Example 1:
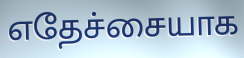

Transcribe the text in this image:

எதேச்சையாக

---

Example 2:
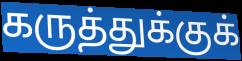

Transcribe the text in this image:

கருத்துக்குக்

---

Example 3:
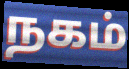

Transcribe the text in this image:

நகம்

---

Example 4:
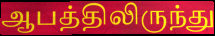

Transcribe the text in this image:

ஆபத்திலிருந்து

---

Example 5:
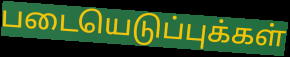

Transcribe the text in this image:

படையெடுப்புக்கள்